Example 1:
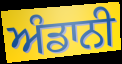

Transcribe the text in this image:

ਅੰਡਾਨੀ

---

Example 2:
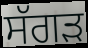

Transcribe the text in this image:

ਸੱਗੜ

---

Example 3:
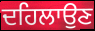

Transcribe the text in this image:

ਦਹਿਲਾਉਣ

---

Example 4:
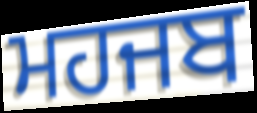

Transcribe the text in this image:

ਮਹਜਬ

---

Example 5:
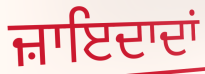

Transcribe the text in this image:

ਜ਼ਾਇਦਾਦਾਂ